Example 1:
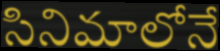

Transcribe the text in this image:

సినిమాలోనే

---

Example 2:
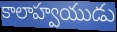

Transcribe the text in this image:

కాలాహ్వయుడు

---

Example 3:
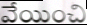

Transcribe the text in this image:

వేయించి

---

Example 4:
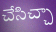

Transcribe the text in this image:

చేసిచ్చా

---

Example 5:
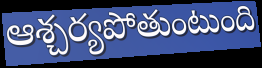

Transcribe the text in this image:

ఆశ్చర్యపోతుంటుంది